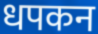
धपकन